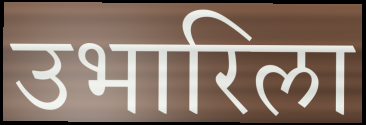
उभारिला